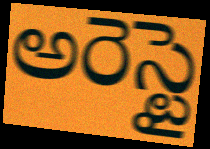
అరెస్టై